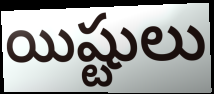
యిష్టులు